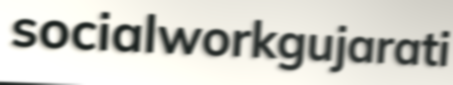
socialworkgujarati